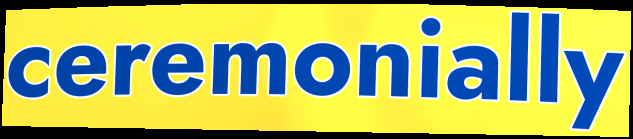
ceremonially